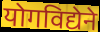
योगविद्येने